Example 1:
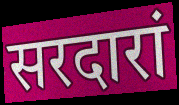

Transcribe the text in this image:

सरदारां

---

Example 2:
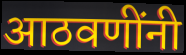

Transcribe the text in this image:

आठवणींनी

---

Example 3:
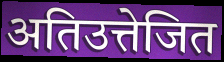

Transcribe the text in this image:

अतिउत्तेजित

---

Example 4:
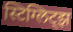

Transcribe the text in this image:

स्टिग्लिट्झ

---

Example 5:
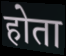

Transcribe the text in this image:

होता